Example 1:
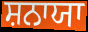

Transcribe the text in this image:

ਸ਼ਨਾਯਾ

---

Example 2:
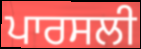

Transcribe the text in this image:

ਪਾਰਸਲੀ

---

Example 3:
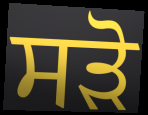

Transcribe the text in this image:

ਸੜੋ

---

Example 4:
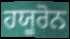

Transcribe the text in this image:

ਹਯੂਰੋਨ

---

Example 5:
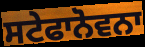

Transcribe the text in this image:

ਸਟੇਫਾਨੋਵਨਾ